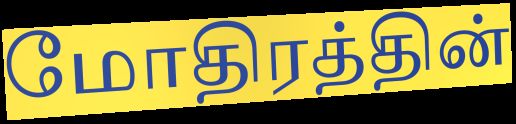
மோதிரத்தின்